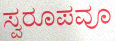
ಸ್ವರೂಪವೂ